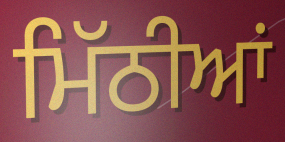
ਮਿੱਠੀਆਂ